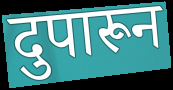
दुपारून